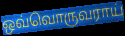
ஒவ்வொருவராய்